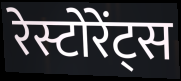
रेस्‍टोरेंट्स